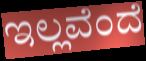
ಇಲ್ಲವೆಂದೆ